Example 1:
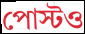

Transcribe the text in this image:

পোস্টও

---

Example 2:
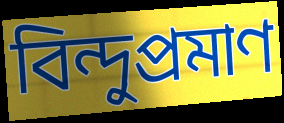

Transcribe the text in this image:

বিন্দুপ্রমাণ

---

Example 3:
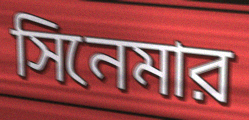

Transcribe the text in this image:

সিনেমার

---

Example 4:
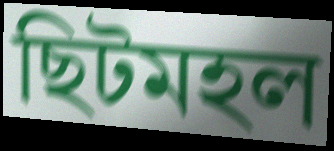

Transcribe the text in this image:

ছিটমহল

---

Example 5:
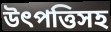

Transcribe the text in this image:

উৎপত্তিসহ